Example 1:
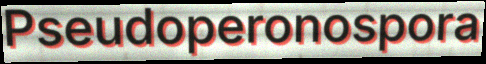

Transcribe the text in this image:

Pseudoperonospora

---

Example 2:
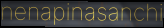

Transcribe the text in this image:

nenapinasanchi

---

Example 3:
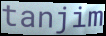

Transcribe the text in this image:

tanjim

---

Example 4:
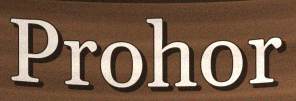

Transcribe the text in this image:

Prohor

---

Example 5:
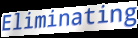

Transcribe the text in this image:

Eliminating